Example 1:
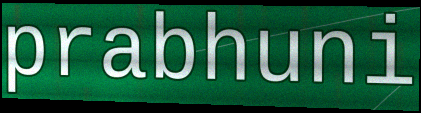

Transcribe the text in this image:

prabhuni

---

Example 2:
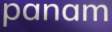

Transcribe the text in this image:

panam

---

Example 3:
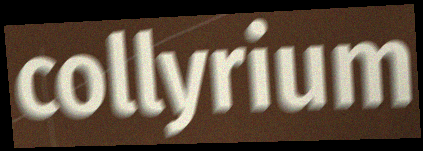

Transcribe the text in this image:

collyrium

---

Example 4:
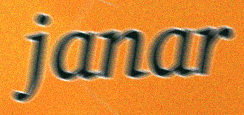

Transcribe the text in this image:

janar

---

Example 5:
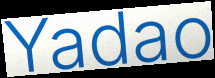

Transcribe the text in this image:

Yadao